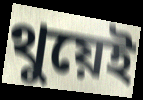
থুয়েই